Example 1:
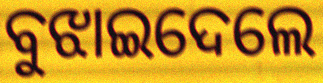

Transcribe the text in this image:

ବୁଝାଇଦେଲେ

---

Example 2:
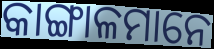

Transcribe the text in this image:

କାଙ୍ଗାଳମାନେ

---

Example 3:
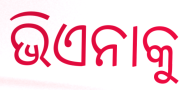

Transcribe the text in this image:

ଭିଏନାକୁ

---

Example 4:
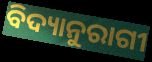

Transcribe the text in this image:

ବିଦ୍ୟାନୁରାଗୀ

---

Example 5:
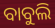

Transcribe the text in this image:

ବାବୁଲି